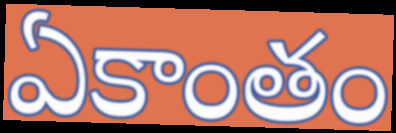
ఏకాంతం